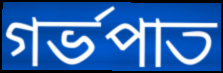
গর্ভপাত